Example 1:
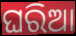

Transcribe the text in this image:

ଘରିଆ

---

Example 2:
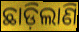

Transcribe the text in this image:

ଛାଡ଼ିଲାଣି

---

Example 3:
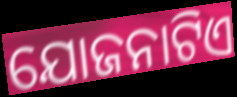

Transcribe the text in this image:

ଯୋଜନାଟିଏ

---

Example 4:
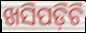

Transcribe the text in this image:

ଖସିପଡ଼ିଚି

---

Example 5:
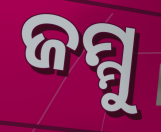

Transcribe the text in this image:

ଜମ୍ମୁ